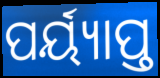
ପର୍ୟ୍ୟାପ୍ତ